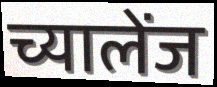
च्यालेंज